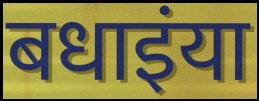
बधाइंया